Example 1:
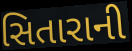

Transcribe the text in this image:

સિતારાની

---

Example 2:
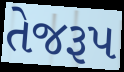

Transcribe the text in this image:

તેજરૂપ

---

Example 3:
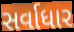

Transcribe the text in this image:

સર્વાધાર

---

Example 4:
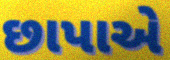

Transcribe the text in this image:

છાપાએ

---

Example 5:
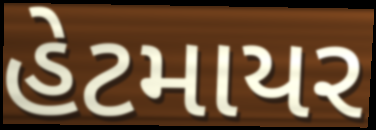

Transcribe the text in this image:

હેટમાયર